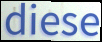
diese